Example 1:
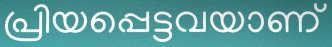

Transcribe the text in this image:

പ്രിയപ്പെട്ടവയാണ്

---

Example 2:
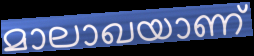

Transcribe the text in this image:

മാലാഖയാണ്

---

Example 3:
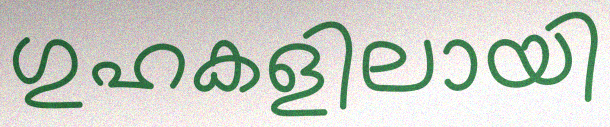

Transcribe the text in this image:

ഗുഹകളിലായി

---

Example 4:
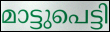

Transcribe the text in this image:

മാട്ടുപെട്ടി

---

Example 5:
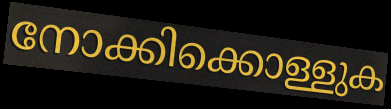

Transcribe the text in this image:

നോക്കിക്കൊള്ളുക